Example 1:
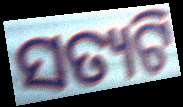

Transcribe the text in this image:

ସତ୍ୟଟି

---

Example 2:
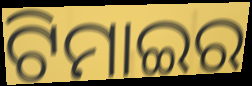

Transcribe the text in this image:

ଟିମାଇର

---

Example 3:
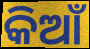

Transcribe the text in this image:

କିଆଁ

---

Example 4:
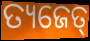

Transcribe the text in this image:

ତ୍ଯଜେତ୍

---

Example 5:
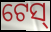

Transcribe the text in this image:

ଟେସ୍